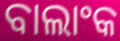
ବାଲାଂକ